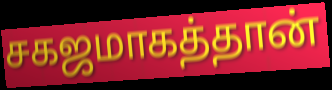
சகஜமாகத்தான்